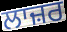
ਲਾਜ਼ਰ